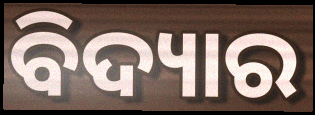
ବିଦ୍ୟାର